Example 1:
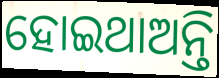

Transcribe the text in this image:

ହୋଇଥାଅନ୍ତି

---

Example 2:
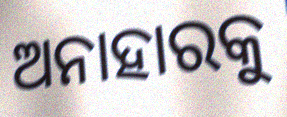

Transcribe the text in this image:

ଅନାହାରକୁ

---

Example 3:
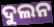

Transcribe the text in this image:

ଦୁଲନ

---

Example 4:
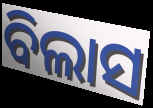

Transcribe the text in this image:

ବିଲାସ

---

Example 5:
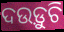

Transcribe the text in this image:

ଦଉଡ଼ୁଚି